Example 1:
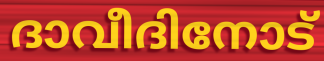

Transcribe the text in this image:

ദാവീദിനോട്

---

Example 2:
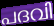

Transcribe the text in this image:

പദവി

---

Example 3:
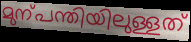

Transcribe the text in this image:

മുന്പന്തിയിലുള്ളത്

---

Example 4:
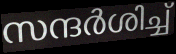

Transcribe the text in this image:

സന്ദർശിച്ച്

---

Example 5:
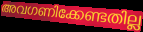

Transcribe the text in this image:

അവഗണിക്കേണ്ടതില്ല